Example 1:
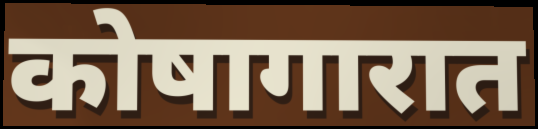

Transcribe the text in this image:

कोषागारात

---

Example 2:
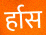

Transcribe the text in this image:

र्हास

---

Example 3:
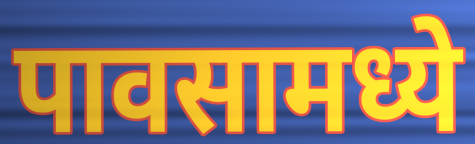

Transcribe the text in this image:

पावसामध्ये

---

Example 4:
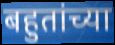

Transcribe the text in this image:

बहुतांच्या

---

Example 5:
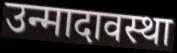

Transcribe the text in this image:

उन्मादावस्था